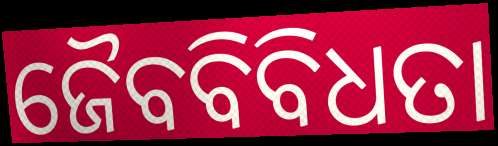
ଜୈବବିବିଧତା